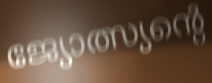
ജ്യോത്സ്യന്റെ